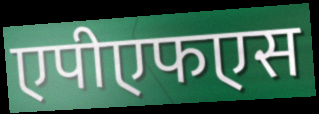
एपीएफएस